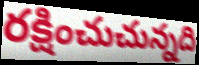
రక్షించుచున్నది